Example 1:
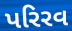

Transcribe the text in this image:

પરિરવ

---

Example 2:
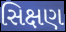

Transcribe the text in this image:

સિક્ષણ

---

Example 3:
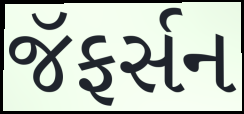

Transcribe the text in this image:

જૅફર્સન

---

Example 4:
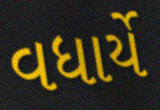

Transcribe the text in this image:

વધાર્યે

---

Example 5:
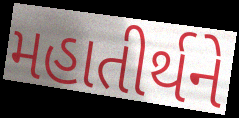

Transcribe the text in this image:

મહાતીર્થને